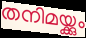
തനിമയ്ക്കും